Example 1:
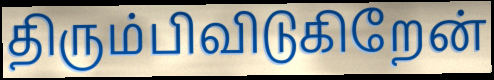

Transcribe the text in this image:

திரும்பிவிடுகிறேன்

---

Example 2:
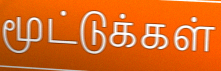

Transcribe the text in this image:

மூட்டுக்கள்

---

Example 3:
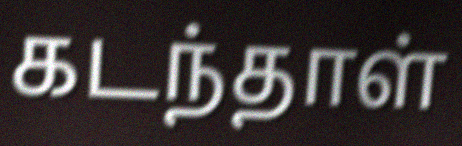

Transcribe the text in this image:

கடந்தாள்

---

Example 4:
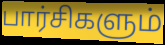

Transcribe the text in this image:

பார்சிகளும்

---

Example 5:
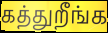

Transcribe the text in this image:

கத்துறீங்க